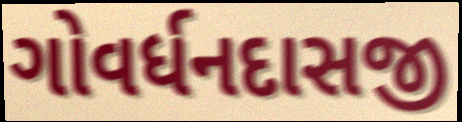
ગોવર્ધનદાસજી